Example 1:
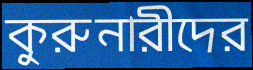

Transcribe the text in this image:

কুরুনারীদের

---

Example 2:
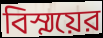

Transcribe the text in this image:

বিস্ময়ের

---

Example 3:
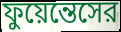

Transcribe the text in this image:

ফুয়েন্তেসের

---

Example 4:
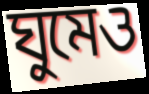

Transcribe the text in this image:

ঘুমেও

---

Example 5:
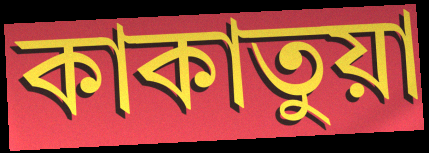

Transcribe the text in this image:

কাকাতুয়া